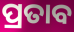
ପ୍ରତାବ